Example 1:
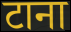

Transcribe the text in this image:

टाना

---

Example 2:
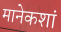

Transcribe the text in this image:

मानेकशां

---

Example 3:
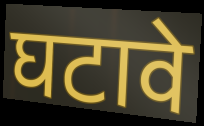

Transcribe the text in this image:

घटावे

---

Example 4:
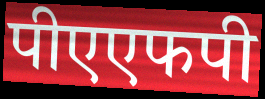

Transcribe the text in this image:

पीएएफपी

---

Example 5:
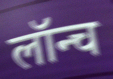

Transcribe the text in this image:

लॉन्च